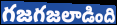
గజగజలాడింది